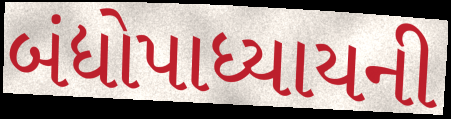
બંદ્યોપાધ્યાયની